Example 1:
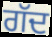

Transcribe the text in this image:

ਗੱਦ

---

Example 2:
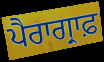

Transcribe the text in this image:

ਪੈਰਾਗ੍ਰਾਫ਼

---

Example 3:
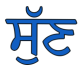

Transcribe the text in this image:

ਸੁੱਣ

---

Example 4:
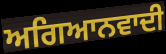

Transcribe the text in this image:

ਅਗਿਆਨਵਾਦੀ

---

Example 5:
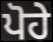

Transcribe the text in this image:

ਪੋਹੇ